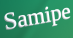
Samipe